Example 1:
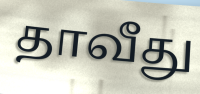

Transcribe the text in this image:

தாவீது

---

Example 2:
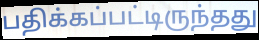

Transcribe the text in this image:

பதிக்கப்பட்டிருந்தது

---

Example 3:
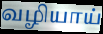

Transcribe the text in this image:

வழியாய்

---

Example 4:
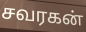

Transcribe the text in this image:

சவரகன்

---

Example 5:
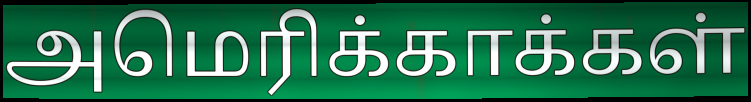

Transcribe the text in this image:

அமெரிக்காக்கள்